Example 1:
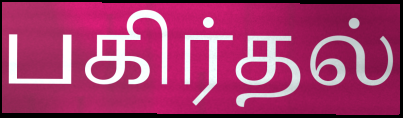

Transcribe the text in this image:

பகிர்தல்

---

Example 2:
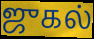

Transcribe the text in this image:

ஜுகல்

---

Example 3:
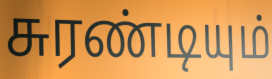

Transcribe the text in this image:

சுரண்டியும்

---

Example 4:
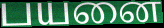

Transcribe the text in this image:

பயனை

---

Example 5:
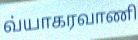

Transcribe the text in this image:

வ்யாகரவாணி